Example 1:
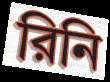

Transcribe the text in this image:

রিনি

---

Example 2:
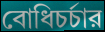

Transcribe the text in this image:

বোধিচর্চার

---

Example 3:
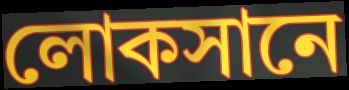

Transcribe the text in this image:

লোকসানে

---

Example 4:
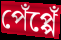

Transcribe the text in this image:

পেঁপ্পেঁ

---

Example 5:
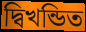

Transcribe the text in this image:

দ্বিখন্ডিত